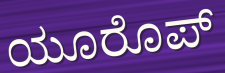
ಯೂರೊಪ್